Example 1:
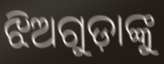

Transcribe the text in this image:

ଝିଅଗୁଡ଼ାଙ୍କୁ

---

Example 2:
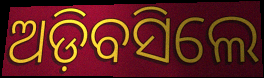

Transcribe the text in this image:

ଅଡ଼ିବସିଲେ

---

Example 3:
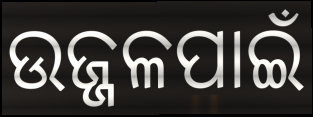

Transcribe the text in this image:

ଉଜ୍ଜଳପାଇଁ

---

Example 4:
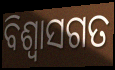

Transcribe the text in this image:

ବିଶ୍ଵାସଗତ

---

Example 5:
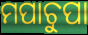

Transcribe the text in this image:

ମପାଚୁପା